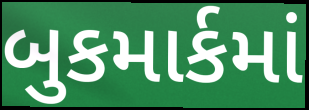
બુકમાર્કમાં